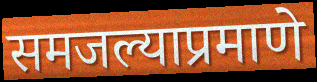
समजल्याप्रमाणे